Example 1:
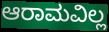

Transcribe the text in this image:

ಆರಾಮವಿಲ್ಲ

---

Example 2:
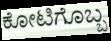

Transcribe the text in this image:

ಕೋಟಿಗೊಬ್ಬ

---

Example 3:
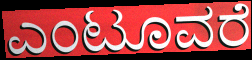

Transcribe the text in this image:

ಎಂಟೂವರೆ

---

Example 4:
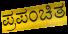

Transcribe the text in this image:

ಪ್ರಪಂಚಿತ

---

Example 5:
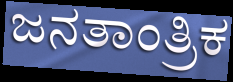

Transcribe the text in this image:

ಜನತಾಂತ್ರಿಕ